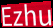
Ezhu